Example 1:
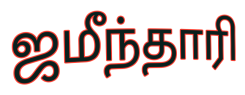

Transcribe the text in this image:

ஜமீந்தாரி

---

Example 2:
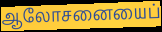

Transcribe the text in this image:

ஆலோசனையைப்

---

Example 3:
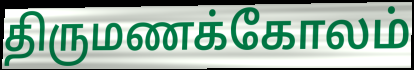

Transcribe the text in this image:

திருமணக்கோலம்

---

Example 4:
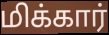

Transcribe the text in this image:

மிக்கார்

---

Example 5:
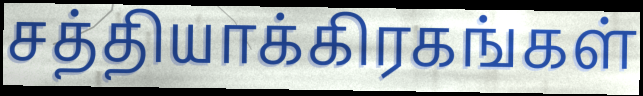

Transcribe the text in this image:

சத்தியாக்கிரகங்கள்